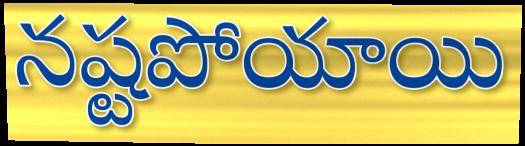
నష్టపోయాయి